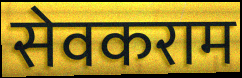
सेवकराम